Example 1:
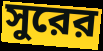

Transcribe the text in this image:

সুরের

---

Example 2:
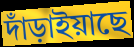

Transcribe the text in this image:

দাঁড়াইয়াছে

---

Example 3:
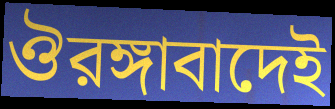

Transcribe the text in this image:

ঔরঙ্গাবাদেই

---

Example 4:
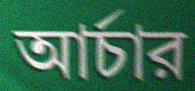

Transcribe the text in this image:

আর্চার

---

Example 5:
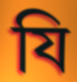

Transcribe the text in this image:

যি